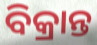
ବିକ୍ରାନ୍ତ